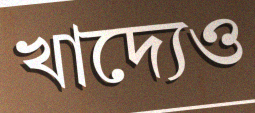
খাদ্যেও